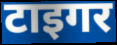
टाइगर